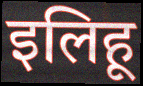
इलिहू